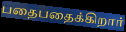
பதைபதைக்கிறார்